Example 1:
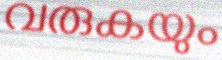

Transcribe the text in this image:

വരുകയും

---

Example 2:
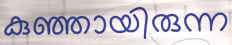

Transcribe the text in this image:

കുഞ്ഞായിരുന്ന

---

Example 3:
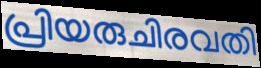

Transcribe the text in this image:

പ്രിയരുചിരവതി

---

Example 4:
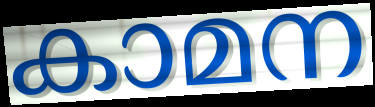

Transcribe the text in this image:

കാമന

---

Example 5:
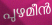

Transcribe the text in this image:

പുഴമീൻ